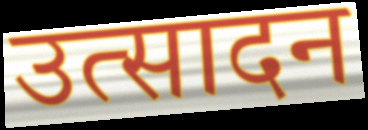
उत्सादन